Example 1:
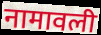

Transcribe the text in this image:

नामावली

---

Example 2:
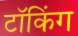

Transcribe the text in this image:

टॉकिंग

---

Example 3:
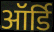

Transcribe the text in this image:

ऑर्डि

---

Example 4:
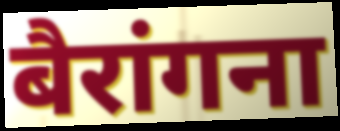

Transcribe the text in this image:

बैरांगना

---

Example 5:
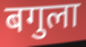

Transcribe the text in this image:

बगुला